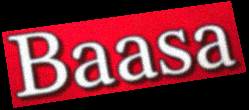
Baasa